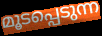
മൂടപ്പെടുന്ന